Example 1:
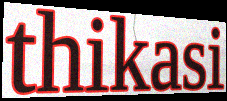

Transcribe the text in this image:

thikasi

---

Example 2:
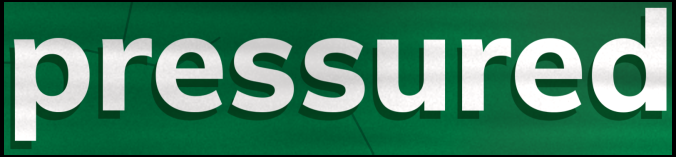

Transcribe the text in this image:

pressured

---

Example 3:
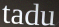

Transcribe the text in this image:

tadu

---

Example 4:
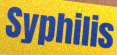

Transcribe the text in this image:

Syphilis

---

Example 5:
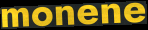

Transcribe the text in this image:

monene